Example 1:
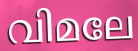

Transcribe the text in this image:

വിമലേ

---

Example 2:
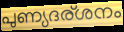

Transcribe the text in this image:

പുണ്യദര്ശനം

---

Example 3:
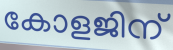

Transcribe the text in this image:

കോളജിന്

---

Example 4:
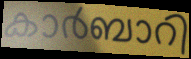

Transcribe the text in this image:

കാർബാറി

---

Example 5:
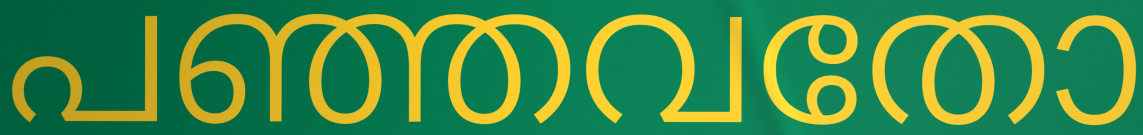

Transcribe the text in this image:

പഞ്ഞവതോ